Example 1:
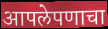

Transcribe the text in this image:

आपलेपणाचा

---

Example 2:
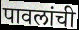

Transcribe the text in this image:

पावलांची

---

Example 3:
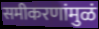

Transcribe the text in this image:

समीकरणांमुळं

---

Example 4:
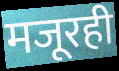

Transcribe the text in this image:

मजूरही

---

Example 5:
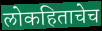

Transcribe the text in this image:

लोकहिताचेच